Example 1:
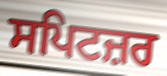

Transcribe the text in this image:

ਸਪਿਟਜ਼ਰ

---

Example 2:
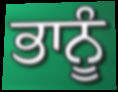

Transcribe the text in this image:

ਭਾਨੂੰ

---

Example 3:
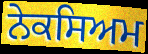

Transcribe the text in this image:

ਨੇਕਸਿਅਮ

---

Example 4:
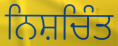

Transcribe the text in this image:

ਨਿਸ਼ਚਿੰਤ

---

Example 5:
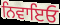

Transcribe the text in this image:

ਨਿਵਾਇਓ